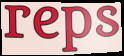
reps